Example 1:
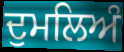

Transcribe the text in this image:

ਦੁਮਲਿਅੰ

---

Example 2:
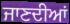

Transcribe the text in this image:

ਜਾਣਦੀਆਂ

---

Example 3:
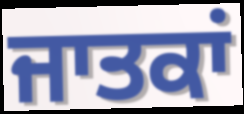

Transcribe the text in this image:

ਜਾਤਕਾਂ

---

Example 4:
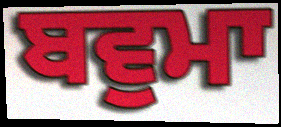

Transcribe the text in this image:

ਬਵੁਮਾ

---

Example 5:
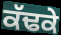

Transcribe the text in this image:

ਕੱਢਕੇ